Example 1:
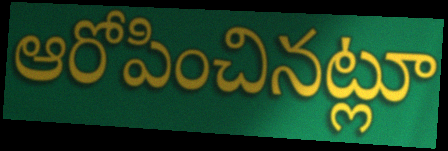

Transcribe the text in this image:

ఆరోపించినట్లూ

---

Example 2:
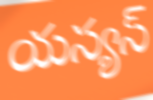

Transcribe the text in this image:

యస్యస్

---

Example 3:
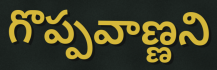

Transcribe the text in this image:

గొప్పవాణ్ణని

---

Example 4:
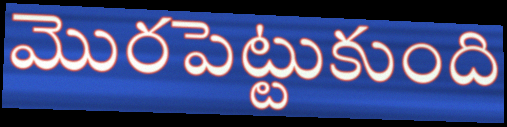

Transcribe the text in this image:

మొరపెట్టుకుంది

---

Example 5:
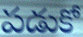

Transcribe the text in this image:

పడుకో